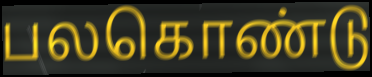
பலகொண்டு